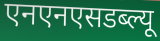
एनएनएसडब्ल्यू